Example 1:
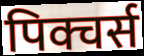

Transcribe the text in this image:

पिक्चर्स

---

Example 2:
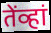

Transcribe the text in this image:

तेंव्हां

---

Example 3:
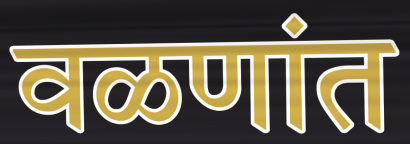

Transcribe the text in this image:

वळणांत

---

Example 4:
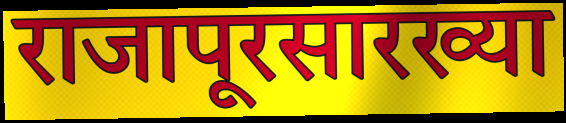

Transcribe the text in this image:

राजापूरसारख्या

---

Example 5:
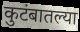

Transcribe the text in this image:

कुटंबातल्या